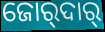
ଜୋର୍‍ଦାର୍